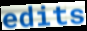
edits